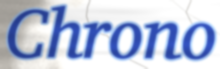
Chrono